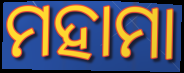
ମହାମା